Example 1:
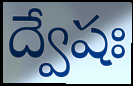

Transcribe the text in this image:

ద్వేషః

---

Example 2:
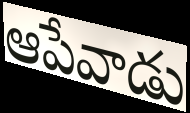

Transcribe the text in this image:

ఆపేవాడు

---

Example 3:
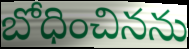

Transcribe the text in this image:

బోధించినను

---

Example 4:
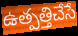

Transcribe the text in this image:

ఉత్పత్తిచేసే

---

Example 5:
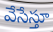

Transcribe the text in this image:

వేసేస్తూ